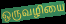
ஒருவழியை